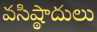
వసిష్ఠాదులు